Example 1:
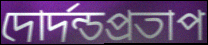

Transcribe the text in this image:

দোর্দন্ডপ্রতাপ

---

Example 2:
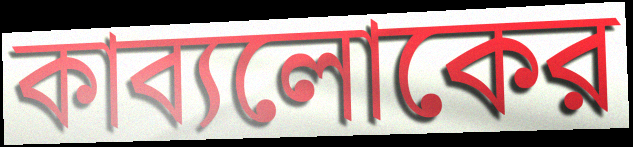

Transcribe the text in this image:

কাব্যলোকের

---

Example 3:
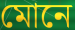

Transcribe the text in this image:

মোনে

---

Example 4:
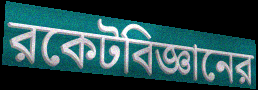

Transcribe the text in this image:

রকেটবিজ্ঞানের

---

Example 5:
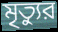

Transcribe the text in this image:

মৃত্যুর